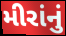
મીરાંનું